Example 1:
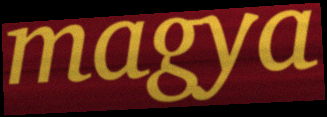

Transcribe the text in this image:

magya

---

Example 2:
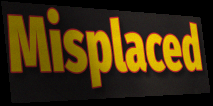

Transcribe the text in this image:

Misplaced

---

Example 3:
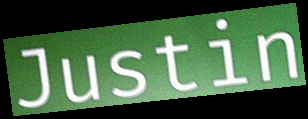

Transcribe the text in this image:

Justin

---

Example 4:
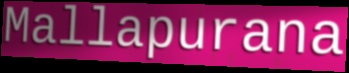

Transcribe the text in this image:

Mallapurana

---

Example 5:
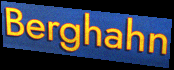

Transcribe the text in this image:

Berghahn